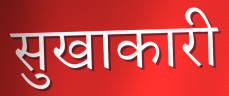
सुखाकारी